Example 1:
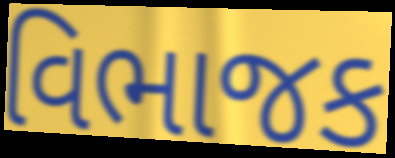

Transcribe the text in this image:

વિભાજક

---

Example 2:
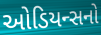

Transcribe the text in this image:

ઓડિયન્સનો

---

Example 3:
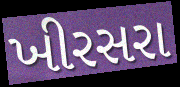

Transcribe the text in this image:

ખીરસરા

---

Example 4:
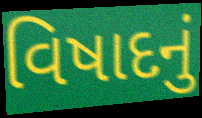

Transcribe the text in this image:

વિષાદનું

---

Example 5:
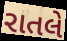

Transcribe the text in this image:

રાતલે